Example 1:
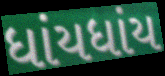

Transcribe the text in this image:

ધાંયધાંય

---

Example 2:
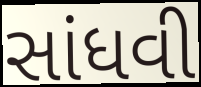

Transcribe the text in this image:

સાંધવી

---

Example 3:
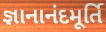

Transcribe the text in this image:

જ્ઞાનાનંદમૂર્તિ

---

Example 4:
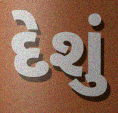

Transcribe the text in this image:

દેશું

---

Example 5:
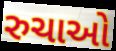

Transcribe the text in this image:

રુચાઓ